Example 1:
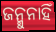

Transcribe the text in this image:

ଜନ୍ମୁନାହିଁ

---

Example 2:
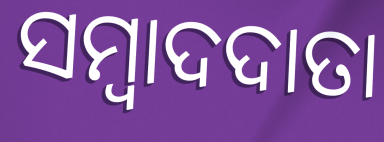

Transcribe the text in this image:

ସମ୍ବାଦଦାତା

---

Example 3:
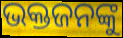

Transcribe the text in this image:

ଭକ୍ତଜନଙ୍କୁ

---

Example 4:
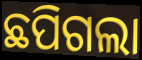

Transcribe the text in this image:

ଛପିଗଲା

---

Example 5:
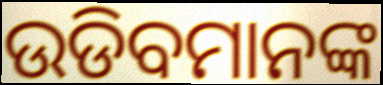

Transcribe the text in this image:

ଉଡିବମାନଙ୍କ